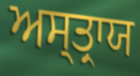
ਅਸ੍ਤ੍ਰਾਯ